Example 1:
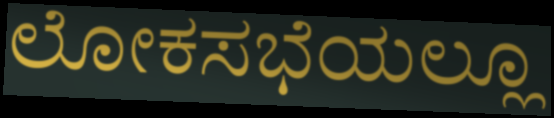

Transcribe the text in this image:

ಲೋಕಸಭೆಯಲ್ಲೂ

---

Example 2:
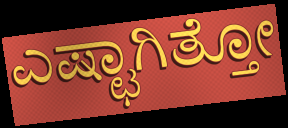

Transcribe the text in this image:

ಎಷ್ಟಾಗಿತ್ತೋ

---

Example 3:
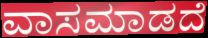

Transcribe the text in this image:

ವಾಸಮಾಡದೆ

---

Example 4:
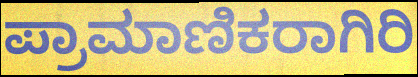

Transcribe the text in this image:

ಪ್ರಾಮಾಣಿಕರಾಗಿರಿ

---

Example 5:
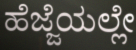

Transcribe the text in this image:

ಹೆಜ್ಜೆಯಲ್ಲೇ